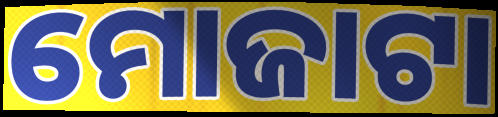
ମୋଜାଟା